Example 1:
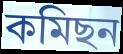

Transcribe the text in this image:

কমিছন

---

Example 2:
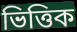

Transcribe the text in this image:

ভিত্তিক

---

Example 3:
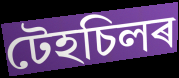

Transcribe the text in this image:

টেহচিলৰ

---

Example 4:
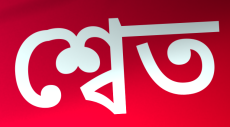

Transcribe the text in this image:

শ্বেত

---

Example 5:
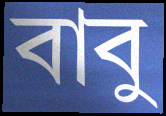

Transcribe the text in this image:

বাবু